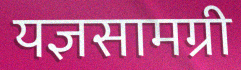
यज्ञसामग्री